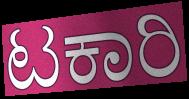
ಟಕಾರಿ